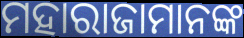
ମହାରାଜାମାନଙ୍କ